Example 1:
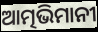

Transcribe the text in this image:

ଆତ୍ମଭିମାନୀ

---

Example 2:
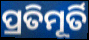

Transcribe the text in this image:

ପ୍ରତିମୂର୍ତି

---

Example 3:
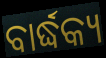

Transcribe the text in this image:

ବାର୍ଦ୍ଧକ୍ୟ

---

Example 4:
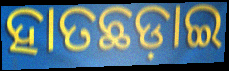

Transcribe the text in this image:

ହାତଛଡ଼ାଇ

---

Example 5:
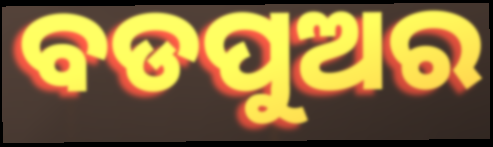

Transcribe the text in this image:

ବଡପୁଅର